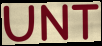
UNT